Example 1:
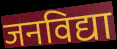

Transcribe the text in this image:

जनविद्या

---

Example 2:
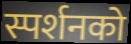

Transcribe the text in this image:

स्पर्शनको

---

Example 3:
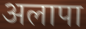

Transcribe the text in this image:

अलापा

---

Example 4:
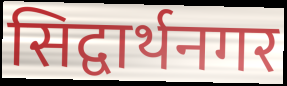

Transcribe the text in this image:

सिद्वार्थनगर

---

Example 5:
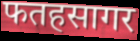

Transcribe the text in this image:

फतहसागर